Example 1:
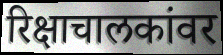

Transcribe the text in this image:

रिक्षाचालकांवर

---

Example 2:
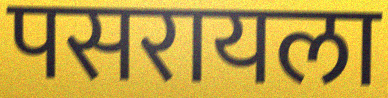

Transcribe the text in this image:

पसरायला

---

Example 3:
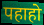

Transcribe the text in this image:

पहाहो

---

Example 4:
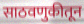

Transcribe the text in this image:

साठवणुकीतून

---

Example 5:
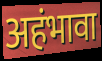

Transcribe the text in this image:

अहंभावा